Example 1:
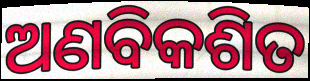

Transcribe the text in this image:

ଅଣବିକଶିତ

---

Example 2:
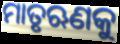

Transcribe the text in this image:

ମାତୃଋଣକୁ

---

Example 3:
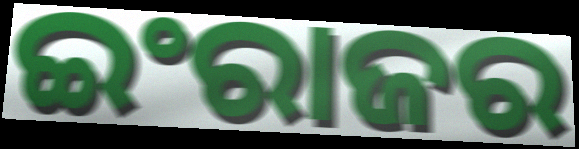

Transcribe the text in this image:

ଇଂରାଜର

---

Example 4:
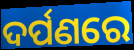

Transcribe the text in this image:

ଦର୍ପଣରେ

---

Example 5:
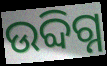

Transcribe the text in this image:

ଉବ୍ଦିଗ୍ନ